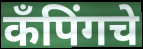
कँपिंगचे